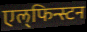
एल्फिन्स्टन